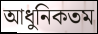
আধুনিকতম